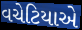
વચેટિયાએ